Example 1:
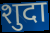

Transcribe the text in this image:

शुदा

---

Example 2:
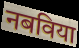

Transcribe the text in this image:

नबविया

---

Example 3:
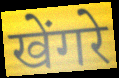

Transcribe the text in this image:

खेंगरे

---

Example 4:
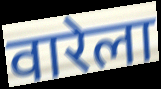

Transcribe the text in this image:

वारेला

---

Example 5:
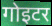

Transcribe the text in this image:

गोइटर